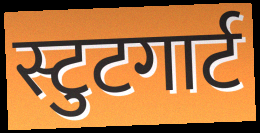
स्टुटगार्ट